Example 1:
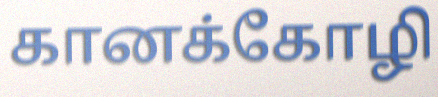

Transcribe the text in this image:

கானக்கோழி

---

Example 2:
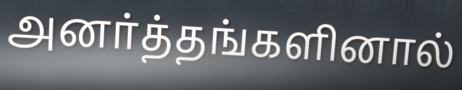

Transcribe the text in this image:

அனர்த்தங்களினால்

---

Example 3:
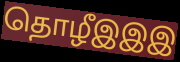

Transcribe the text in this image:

தொழீஇஇஇ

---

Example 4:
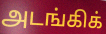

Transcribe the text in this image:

அடங்கிக்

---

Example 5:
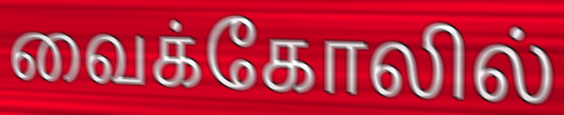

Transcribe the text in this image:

வைக்கோலில்